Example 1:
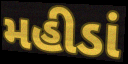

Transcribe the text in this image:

મહીડાં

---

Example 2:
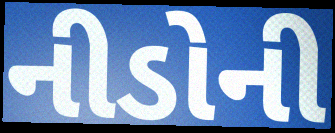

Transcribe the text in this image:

નીડોની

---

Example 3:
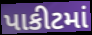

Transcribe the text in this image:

પાકીટમાં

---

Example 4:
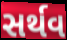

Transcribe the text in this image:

સર્થવ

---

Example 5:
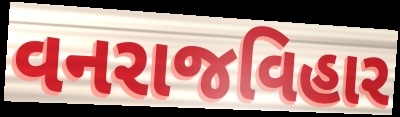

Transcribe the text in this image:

વનરાજવિહાર